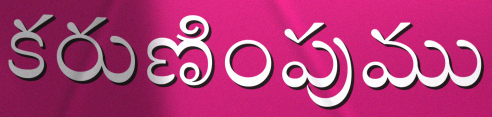
కరుణింపుము